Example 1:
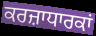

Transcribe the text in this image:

ਕਰਜ਼ਾਧਾਰਕਾਂ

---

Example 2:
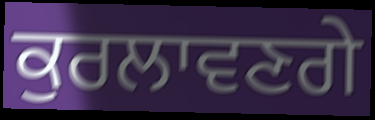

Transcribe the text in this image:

ਕੁਰਲਾਵਣਗੇ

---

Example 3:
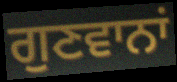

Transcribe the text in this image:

ਗੁਣਵਾਨਾਂ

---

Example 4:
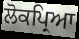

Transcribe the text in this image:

ਲੋਕਪ੍ਰਿਆ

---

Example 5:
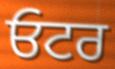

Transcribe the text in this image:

ਓਟਰ